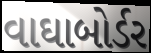
વાઘાબોર્ડર